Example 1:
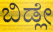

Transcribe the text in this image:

ಬಿಡ್ಲೇ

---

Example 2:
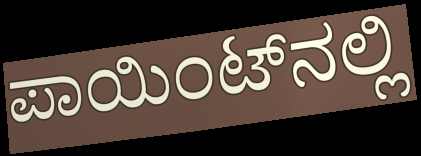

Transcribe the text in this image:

ಪಾಯಿಂಟ್‌ನಲ್ಲಿ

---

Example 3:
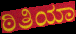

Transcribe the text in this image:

ಠಿತಿಯಾ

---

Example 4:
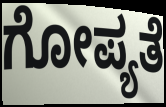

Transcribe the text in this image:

ಗೋಪ್ಯತೆ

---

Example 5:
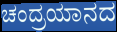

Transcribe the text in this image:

ಚಂದ್ರಯಾನದ